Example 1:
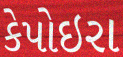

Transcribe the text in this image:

કેપોઇરા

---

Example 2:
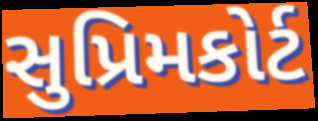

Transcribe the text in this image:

સુપ્રિમકોર્ટ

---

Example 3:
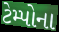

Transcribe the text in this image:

ટેમ્પોના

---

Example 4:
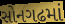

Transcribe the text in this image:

સોનગઢમાં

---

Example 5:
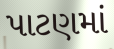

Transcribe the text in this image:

પાટણમાં